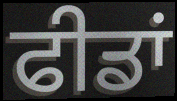
ਫੀਡਾਂ